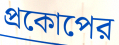
প্রকোপের